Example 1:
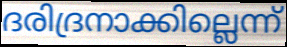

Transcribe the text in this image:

ദരിദ്രനാക്കില്ലെന്ന്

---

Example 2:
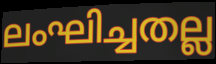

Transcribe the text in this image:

ലംഘിച്ചതല്ല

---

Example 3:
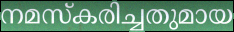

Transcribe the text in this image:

നമസ്കരിച്ചതുമായ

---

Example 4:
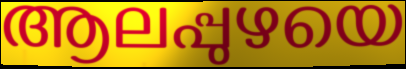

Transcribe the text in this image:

ആലപ്പുഴയെ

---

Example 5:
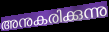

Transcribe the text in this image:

അനുകരിക്കുന്നു